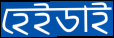
হেইডাই